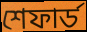
শেফার্ড